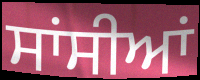
ਸਾਂਸੀਆਂ